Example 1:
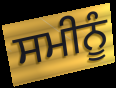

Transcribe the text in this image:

ਸਮੀਨੂੰ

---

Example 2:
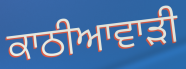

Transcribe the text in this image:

ਕਾਠੀਆਵਾੜੀ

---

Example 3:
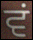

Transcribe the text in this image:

ਵਂ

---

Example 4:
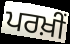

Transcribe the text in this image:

ਪਰਖ਼ੀਂ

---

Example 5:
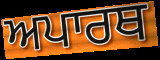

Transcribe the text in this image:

ਅਪਾਰਥ